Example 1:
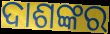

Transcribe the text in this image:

ଦାଶଙ୍କର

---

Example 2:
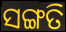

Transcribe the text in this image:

ସଙ୍ଗତି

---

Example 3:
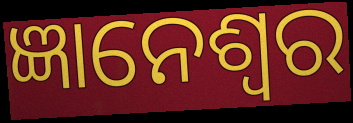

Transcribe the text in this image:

ଜ୍ଞାନେଶ୍ୱର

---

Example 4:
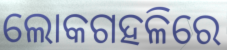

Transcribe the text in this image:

ଲୋକଗହଳିରେ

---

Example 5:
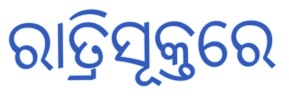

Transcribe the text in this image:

ରାତ୍ରିସୂକ୍ତରେ